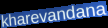
kharevandana